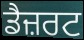
ਡੈਜ਼ਰਟ